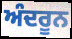
ਅੰਦਰੂਨ